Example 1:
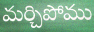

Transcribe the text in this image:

మర్చిపోము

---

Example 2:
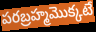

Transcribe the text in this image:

పరబ్రహ్మమొక్కటే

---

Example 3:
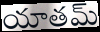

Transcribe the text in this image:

యాతమ్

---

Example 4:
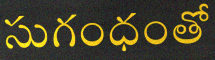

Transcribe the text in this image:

సుగంధంతో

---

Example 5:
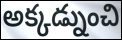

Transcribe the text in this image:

అక్కడ్నుంచి